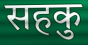
सहकु